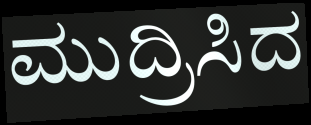
ಮುದ್ರಿಸಿದ